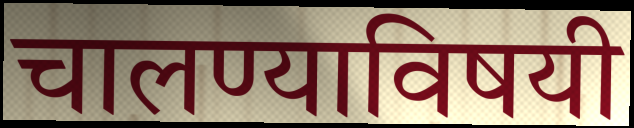
चालण्याविषयी